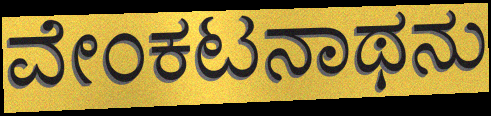
ವೇಂಕಟನಾಥನು